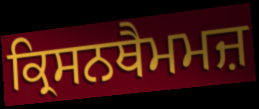
ਕ੍ਰਿਸਨਥੈਮਮਜ਼